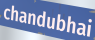
chandubhai